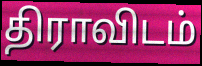
திராவிடம்